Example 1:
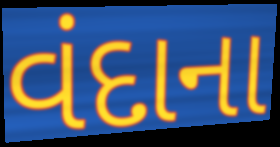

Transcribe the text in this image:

વંદાના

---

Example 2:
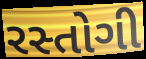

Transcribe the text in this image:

રસ્તોગી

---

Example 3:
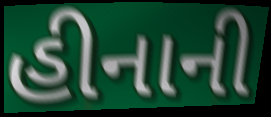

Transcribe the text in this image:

હીનાની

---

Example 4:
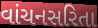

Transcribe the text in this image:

વાંચનસરિતા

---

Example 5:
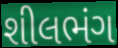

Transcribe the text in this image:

શીલભંગ